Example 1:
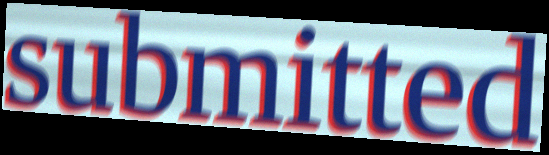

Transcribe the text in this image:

submitted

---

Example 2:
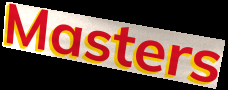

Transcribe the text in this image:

Masters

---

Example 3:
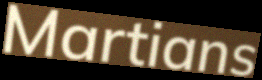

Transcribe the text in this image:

Martians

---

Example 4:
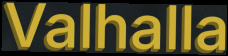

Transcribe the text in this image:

Valhalla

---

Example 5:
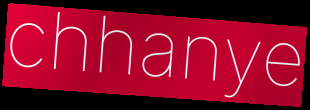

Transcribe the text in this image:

chhanye